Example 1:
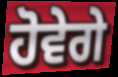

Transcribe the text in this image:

ਹੋਵੇਗੇ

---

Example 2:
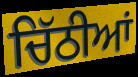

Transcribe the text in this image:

ਚਿੱਠੀਆਂ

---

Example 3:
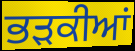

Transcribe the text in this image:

ਭੜਕੀਆਂ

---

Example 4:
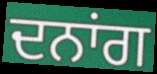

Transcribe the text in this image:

ਦਨਾਂਗ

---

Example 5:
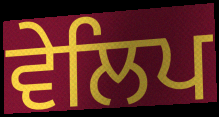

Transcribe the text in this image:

ਵੇਲਿਪ